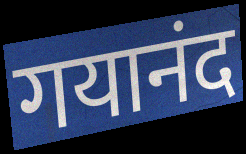
गयानंद